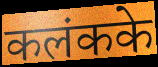
कलंकके